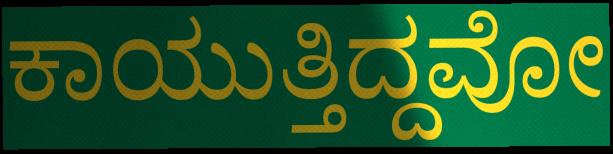
ಕಾಯುತ್ತಿದ್ದವೋ